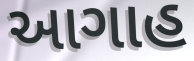
આગાહ